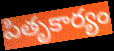
పితృకార్యం